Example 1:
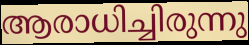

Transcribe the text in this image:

ആരാധിച്ചിരുന്നു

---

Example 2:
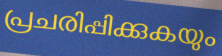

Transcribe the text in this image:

പ്രചരിപ്പിക്കുകയും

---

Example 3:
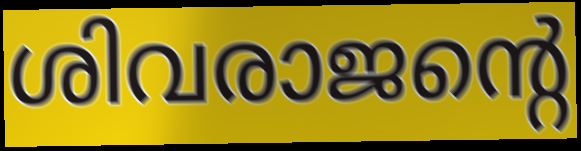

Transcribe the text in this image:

ശിവരാജന്റെ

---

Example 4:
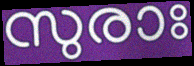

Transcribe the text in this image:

സുരാഃ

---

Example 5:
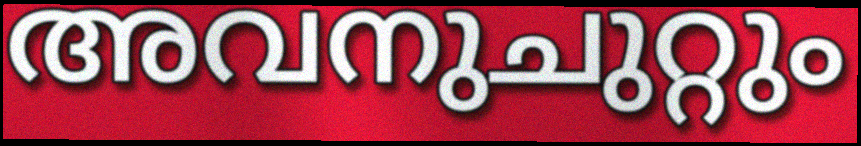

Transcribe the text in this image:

അവനുചുറ്റും